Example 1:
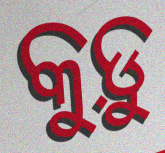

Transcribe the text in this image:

କୁଡ଼ୁ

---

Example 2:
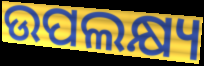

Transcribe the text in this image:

ଉପଲକ୍ଷ୍ୟ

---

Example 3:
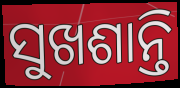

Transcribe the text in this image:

ସୁଖଶାନ୍ତି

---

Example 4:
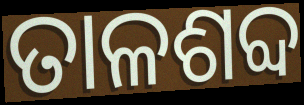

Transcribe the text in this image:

ତାଳଶବ୍ଦ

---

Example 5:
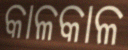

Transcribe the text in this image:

କାଳକାଳ